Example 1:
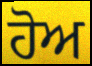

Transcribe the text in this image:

ਹੋਅ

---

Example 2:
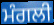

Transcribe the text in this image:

ਮੰਗਲੀ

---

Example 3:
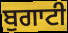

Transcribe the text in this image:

ਬੁਗਾਟੀ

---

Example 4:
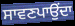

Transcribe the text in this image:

ਸਾਵਣਪਾਉਂਦਾ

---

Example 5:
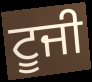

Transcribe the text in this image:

ਟੂਜੀ